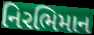
નિરભિમાન